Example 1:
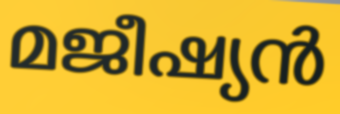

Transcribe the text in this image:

മജീഷ്യൻ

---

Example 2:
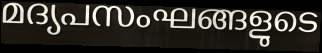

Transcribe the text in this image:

മദ്യപസംഘങ്ങളുടെ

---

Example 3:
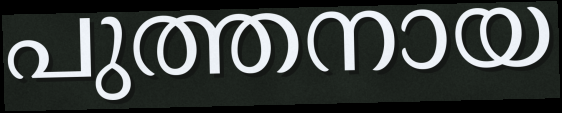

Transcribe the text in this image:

പുത്തനായ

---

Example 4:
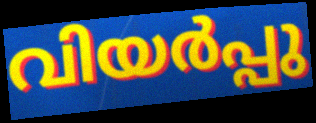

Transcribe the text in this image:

വിയർപ്പു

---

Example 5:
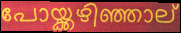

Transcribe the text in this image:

പോയ്ക്കഴിഞ്ഞാല്